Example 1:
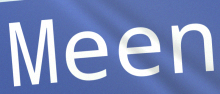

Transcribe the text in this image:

Meen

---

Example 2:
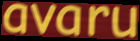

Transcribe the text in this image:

avaru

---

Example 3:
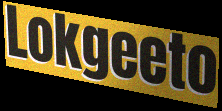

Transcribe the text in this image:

Lokgeeto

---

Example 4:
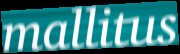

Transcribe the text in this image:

mallitus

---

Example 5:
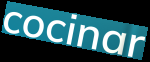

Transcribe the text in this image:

cocinar